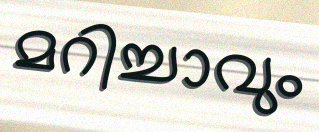
മറിച്ചാവും